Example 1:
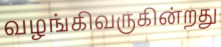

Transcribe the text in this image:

வழங்கிவருகின்றது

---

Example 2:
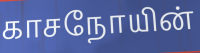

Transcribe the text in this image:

காசநோயின்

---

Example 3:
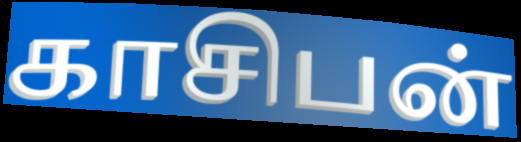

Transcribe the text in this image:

காசிபன்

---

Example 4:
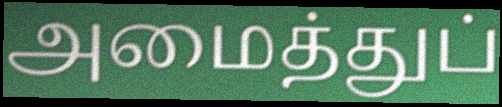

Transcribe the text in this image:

அமைத்துப்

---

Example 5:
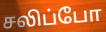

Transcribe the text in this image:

சலிப்போ